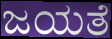
ಜಯತೆ